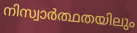
നിസ്വാർത്ഥതയിലും